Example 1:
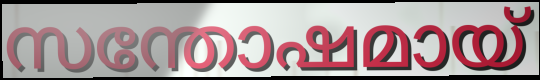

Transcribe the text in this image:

സന്തോഷമായ്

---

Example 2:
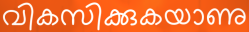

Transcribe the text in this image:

വികസിക്കുകയാണു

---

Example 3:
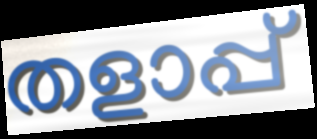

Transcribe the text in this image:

തളാപ്പ്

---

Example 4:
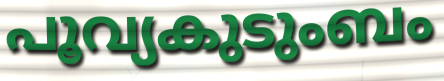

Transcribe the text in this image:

പൂവ്യകുടുംബം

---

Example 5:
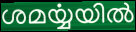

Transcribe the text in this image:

ശമൎയ്യയിൽ